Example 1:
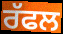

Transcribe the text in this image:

ਰੱਫਲ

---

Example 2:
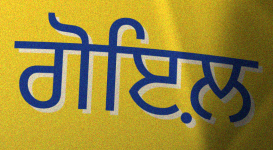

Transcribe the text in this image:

ਗੋਇਲ਼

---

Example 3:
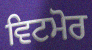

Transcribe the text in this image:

ਵਿਟਮੋਰ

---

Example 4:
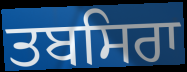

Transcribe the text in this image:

ਤਬਸਿਰਾ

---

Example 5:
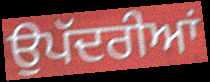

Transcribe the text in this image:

ਉਪੱਦਰੀਆਂ